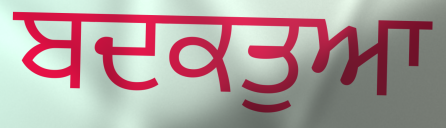
ਬਦਕਤੁਆ